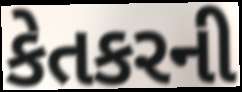
કેતકરની